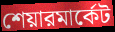
শেয়ারমার্কেট